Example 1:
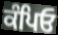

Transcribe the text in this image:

ਕੰਪਿਓ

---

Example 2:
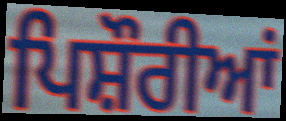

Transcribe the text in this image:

ਪਿਸ਼ੌਰੀਆਂ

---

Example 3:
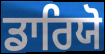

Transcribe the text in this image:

ਡਾਰਿਯੋ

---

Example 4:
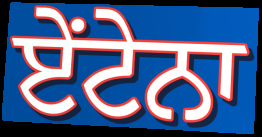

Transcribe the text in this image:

ਏਂਟੇਨਾ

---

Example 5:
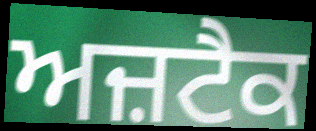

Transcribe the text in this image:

ਅਜ਼ਟੈਕ